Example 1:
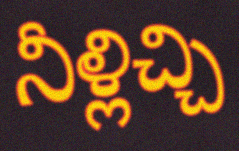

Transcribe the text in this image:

నీళ్లిచ్చి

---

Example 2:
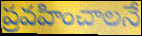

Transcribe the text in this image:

ప్రవహించాలనే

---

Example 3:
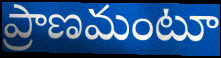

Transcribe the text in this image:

ప్రాణమంటూ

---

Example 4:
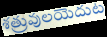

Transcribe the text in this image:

శత్రువులయెదుట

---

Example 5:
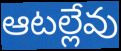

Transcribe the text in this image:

ఆటల్లేవు